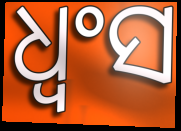
ଧ୍ୱଂସ